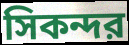
সিকন্দর